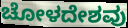
ಚೋಳದೇಶವು